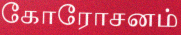
கோரோசனம்